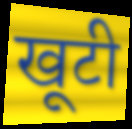
खूटी